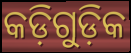
କଡ଼ିଗୁଡ଼ିକ